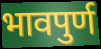
भावपुर्ण